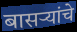
बासऱ्यांचे